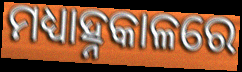
ମଧ୍ୟାହ୍ନକାଳରେ